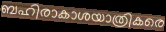
ബഹിരാകാശയാത്രികരെ